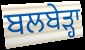
ਬਲਬੇੜ੍ਹਾ